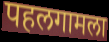
पहलगामला